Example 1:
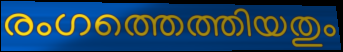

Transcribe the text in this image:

രംഗത്തെത്തിയതും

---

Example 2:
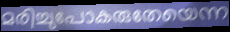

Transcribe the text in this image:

മരിച്ചുപോകരുതേയെന്ന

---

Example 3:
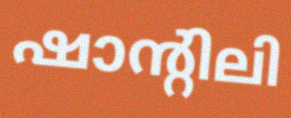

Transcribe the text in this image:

ഷാന്റിലി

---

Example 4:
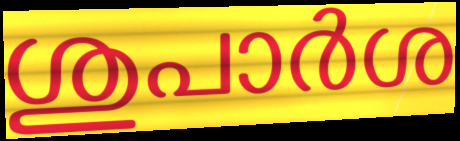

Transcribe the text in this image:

ശുപാർശ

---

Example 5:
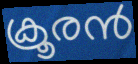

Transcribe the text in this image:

ക്രൂരൻ